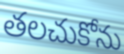
తలచుకోను